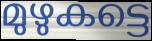
മുഴുകട്ടെ